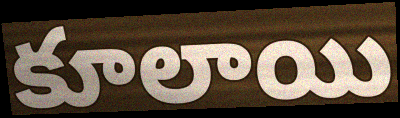
కూలాయి